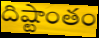
దిష్టాంతం